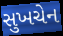
સુખચેન